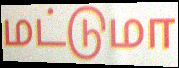
மட்டுமா